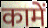
कामें